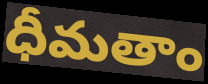
ధీమతాం